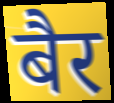
बैर